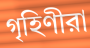
গৃহিণীরা